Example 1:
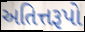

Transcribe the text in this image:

અતિત્તરૂપો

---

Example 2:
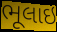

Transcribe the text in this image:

ભૂલાઇ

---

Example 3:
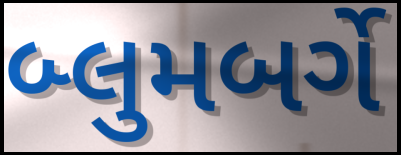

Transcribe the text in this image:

બ્લુમબર્ગે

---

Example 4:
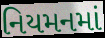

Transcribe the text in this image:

નિયમનમાં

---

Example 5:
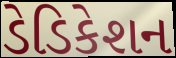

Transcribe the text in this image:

ડેડિકેશન